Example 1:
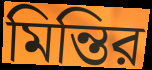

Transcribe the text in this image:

মিন্তির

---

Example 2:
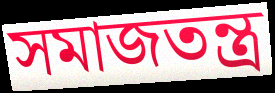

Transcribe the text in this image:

সমাজতন্ত্র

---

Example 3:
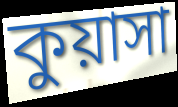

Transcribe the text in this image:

কুয়াসা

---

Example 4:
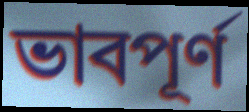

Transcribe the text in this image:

ভাবপূর্ণ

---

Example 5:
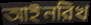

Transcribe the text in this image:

আইনরিখ